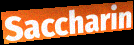
Saccharin